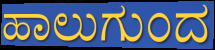
ಹಾಲುಗುಂದ